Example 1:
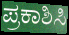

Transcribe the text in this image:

ಪ್ರಕಾಶಿಸಿ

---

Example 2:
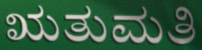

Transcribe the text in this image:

ಋತುಮತಿ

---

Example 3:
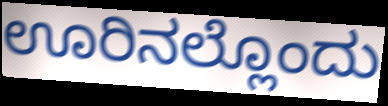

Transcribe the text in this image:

ಊರಿನಲ್ಲೊಂದು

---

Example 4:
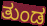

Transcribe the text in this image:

ತುಂಡ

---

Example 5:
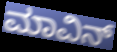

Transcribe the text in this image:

ಮಾವಿನ್